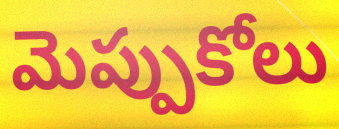
మెప్పుకోలు